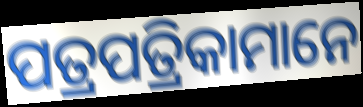
ପତ୍ରପତ୍ରିକାମାନେ